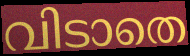
വിടാതെ